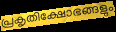
പ്രകൃതിക്ഷോഭങ്ങളും